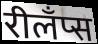
रीलँप्स